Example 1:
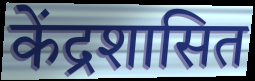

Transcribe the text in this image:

केंद्रशासित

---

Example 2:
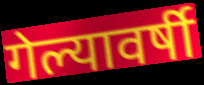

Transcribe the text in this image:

गेल्यावर्षी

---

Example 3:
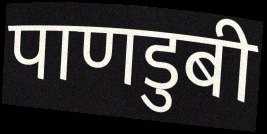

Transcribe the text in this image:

पाणडुबी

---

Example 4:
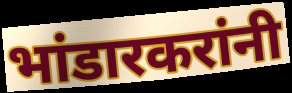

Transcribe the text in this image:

भांडारकरांनी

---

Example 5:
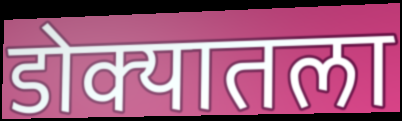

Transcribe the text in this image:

डोक्यातला